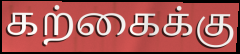
கற்கைக்கு